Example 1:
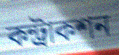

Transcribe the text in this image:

কন্ট্রাকশন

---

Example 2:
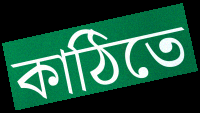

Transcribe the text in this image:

কাঠিতে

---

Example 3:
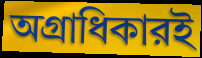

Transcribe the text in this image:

অগ্রাধিকারই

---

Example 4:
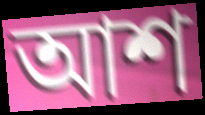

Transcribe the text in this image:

আশ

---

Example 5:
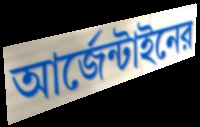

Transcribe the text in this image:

আর্জেন্টাইনের